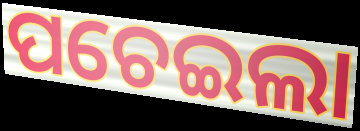
ପଚେଇଲା